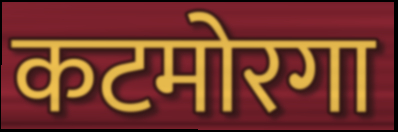
कटमोरगा